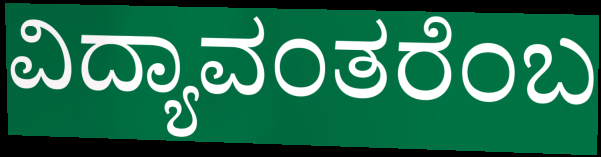
ವಿದ್ಯಾವಂತರೆಂಬ